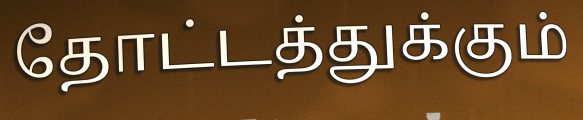
தோட்டத்துக்கும்